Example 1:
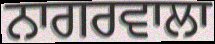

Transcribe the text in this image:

ਨਾਗਰਵਾਲਾ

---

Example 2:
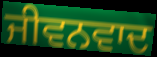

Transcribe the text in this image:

ਜੀਵਨਵਾਦ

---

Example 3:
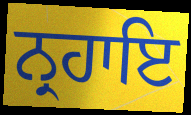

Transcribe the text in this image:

ਨ੍ਰਹਾਇ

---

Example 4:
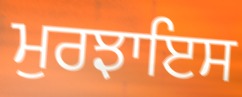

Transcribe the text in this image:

ਮੁਰਝਾਇਸ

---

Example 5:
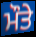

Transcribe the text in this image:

ਮੌਤੇ